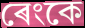
ৰেংকে